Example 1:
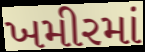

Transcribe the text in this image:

ખમીરમાં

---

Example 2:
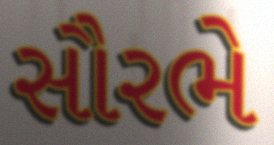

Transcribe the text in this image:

સૌરભે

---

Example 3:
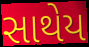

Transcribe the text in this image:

સાથેય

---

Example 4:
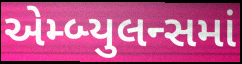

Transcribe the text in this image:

એમ્બ્યુલન્સમાં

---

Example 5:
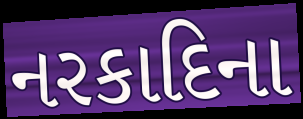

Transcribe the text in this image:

નરકાદિના